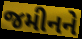
જમીનને